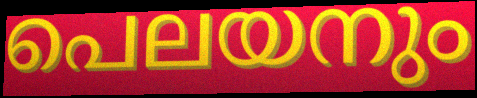
പെലയനും